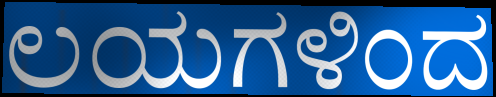
ಲಯಗಳಿಂದ